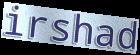
irshad